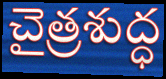
చైత్రశుద్ధ